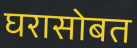
घरासोबत